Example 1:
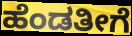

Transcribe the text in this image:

ಹೆಂಡತೀಗೆ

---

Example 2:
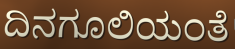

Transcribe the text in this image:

ದಿನಗೂಲಿಯಂತೆ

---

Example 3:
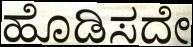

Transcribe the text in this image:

ಹೊಡಿಸದೇ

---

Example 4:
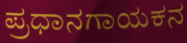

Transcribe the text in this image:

ಪ್ರಧಾನಗಾಯಕನ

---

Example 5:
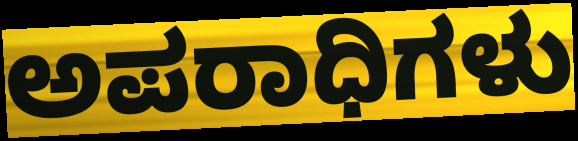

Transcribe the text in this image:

ಅಪರಾಧಿಗಳು